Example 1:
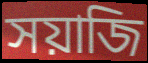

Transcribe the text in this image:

সয়াজি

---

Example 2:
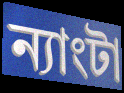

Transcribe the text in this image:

ন্যাংটা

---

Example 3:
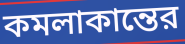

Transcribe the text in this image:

কমলাকান্তের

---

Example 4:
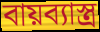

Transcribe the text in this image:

বায়ব্যাস্ত্র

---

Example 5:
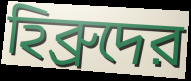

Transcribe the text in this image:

হিব্রুদের